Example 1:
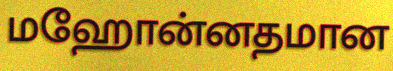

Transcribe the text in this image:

மஹோன்னதமான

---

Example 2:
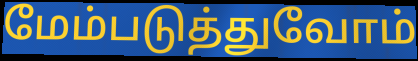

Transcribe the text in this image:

மேம்படுத்துவோம்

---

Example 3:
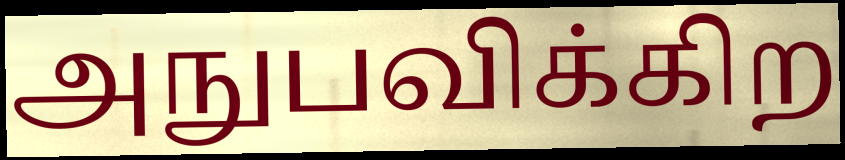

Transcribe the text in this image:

அநுபவிக்கிற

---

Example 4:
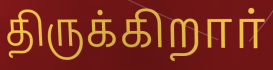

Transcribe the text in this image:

திருக்கிறார்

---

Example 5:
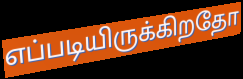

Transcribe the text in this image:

எப்படியிருக்கிறதோ